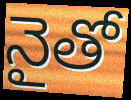
నైతో